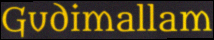
Gudimallam